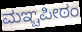
ಮಞ್ಚಪೀಠಂ